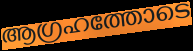
ആഗ്രഹത്തോടെ